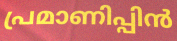
പ്രമാണിപ്പിൻ